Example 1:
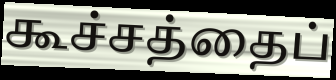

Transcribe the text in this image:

கூச்சத்தைப்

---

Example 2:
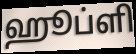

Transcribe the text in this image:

ஹூப்ளி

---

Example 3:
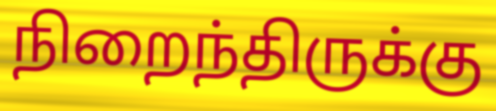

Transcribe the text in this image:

நிறைந்திருக்கு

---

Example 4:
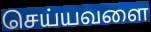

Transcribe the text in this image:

செய்யவளை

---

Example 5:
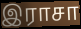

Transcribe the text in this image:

இராசா